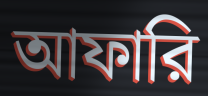
আফারি